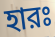
হারঃ